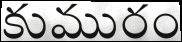
కుమురం